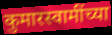
कुमारस्वामींच्या